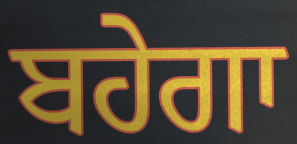
ਬਹੇਗਾ